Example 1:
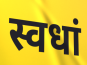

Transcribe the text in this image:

स्वधां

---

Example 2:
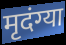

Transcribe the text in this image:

मृदंग्या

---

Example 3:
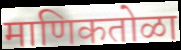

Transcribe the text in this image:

माणिकतोळा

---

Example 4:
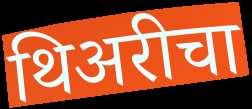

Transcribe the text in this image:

थिअरीचा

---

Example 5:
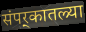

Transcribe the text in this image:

संपर्कातल्या